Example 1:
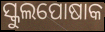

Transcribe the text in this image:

ସ୍କୁଲପୋଷାକ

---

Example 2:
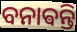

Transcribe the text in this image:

ବନାଵନ୍ତି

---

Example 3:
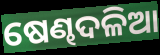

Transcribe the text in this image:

ଷେଣ୍ଢଦଳିଆ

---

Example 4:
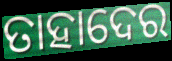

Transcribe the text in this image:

ତାହାଦେର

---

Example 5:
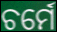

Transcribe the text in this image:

ଚର୍ମେ